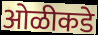
ओळीकडे